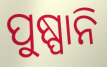
ପୁଷ୍ପାନି